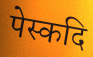
पेस्कदि